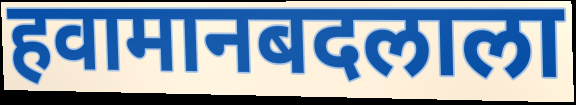
हवामानबदलाला